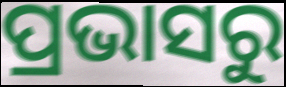
ପ୍ରଭାସରୁ